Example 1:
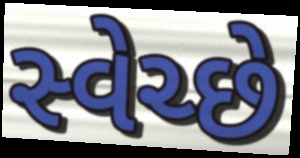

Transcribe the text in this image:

સ્વેચ્છે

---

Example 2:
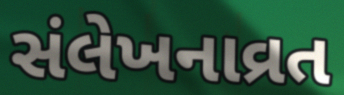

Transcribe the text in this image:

સંલેખનાવ્રત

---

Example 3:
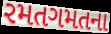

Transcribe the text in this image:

રમતગમતના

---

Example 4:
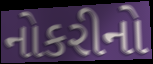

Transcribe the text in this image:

નોકરીનો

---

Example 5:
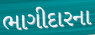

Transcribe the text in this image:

ભાગીદારના